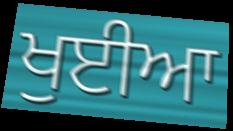
ਖੁਈਆ